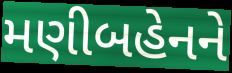
મણીબહેનને